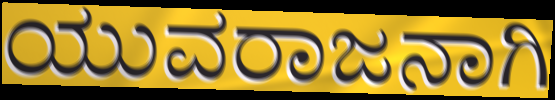
ಯುವರಾಜನಾಗಿ